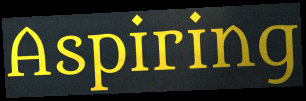
Aspiring